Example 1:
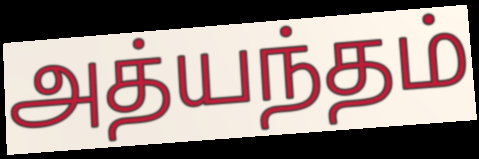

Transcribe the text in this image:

அத்யந்தம்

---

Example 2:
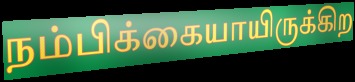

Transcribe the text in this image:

நம்பிக்கையாயிருக்கிற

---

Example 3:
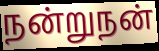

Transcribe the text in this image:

நன்றுநன்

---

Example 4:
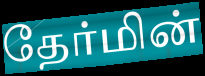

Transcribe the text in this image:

தேர்மின்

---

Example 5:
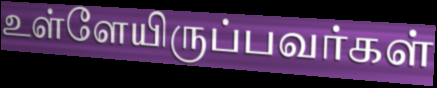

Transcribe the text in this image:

உள்ளேயிருப்பவர்கள்